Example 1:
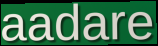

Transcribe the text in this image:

aadare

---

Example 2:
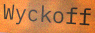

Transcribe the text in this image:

Wyckoff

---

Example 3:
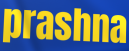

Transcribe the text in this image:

prashna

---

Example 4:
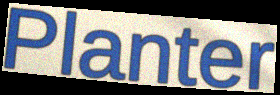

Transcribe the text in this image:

Planter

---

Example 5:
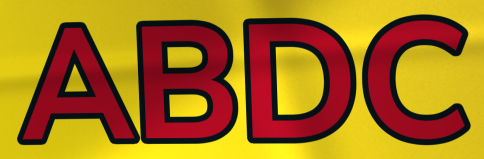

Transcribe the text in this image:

ABDC